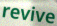
revive